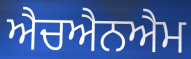
ਐਚਐਨਐਮ